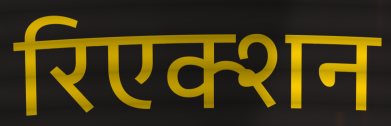
रिएक्शन